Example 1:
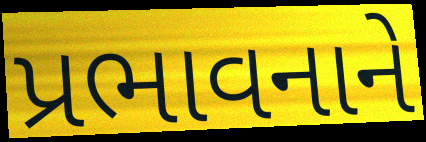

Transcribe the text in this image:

પ્રભાવનાને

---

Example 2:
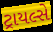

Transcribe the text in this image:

ટ્રાયલ્સે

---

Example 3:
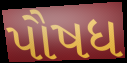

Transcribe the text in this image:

પૌષધ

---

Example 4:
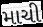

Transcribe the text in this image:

માચી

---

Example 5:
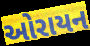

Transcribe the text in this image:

ઓરાયન